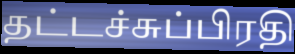
தட்டச்சுப்பிரதி